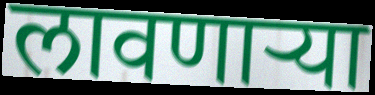
लावणाऱ्या